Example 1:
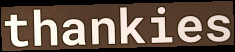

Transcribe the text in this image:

thankies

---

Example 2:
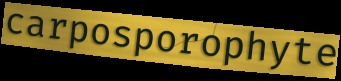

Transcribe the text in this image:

carposporophyte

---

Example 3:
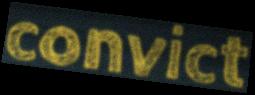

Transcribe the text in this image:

convict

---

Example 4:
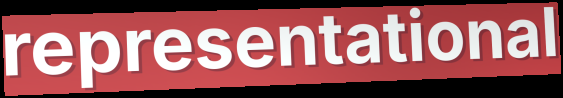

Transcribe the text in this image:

representational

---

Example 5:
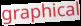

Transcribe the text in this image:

graphical